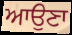
ਆਉਣਾ